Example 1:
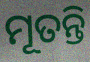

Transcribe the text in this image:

ମୂତନ୍ତି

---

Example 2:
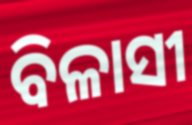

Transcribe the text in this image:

ବିଳାସୀ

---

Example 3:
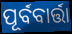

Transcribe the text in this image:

ପୂର୍ବବାର୍ତ୍ତା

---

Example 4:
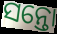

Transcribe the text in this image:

ସନ୍ତୋ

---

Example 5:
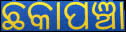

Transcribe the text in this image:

ଛକାପଞ୍ଚା